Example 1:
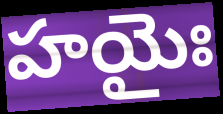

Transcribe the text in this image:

హయైః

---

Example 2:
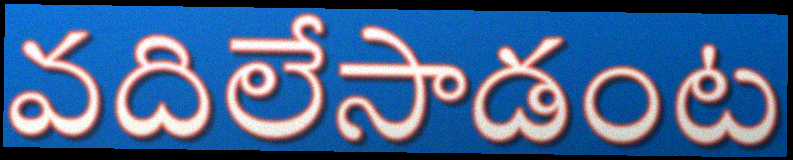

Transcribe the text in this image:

వదిలేసాడంట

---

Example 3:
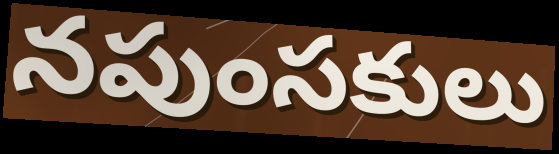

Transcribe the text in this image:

నపుంసకులు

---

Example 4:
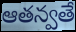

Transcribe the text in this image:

ఆతన్వతే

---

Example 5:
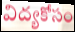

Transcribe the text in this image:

విద్యకోసం